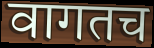
वागतच